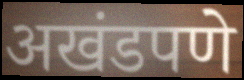
अखंडपणे